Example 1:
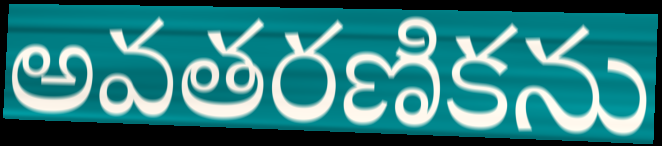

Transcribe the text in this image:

అవతరణికను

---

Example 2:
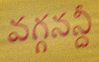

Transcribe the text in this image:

వగ్గనన్దీ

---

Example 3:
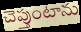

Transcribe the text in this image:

చెప్తుంటాను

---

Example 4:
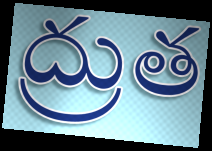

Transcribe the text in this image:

ద్రుత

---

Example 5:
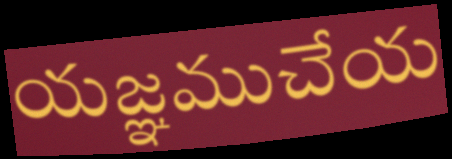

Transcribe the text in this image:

యజ్ఞముచేయ